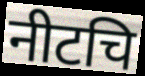
नीटचि